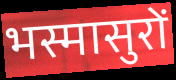
भस्मासुरों